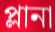
প্লানা